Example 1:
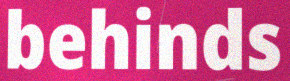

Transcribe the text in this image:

behinds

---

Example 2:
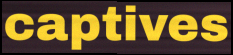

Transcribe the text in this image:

captives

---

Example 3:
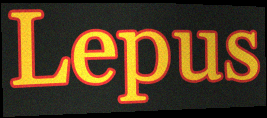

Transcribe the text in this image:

Lepus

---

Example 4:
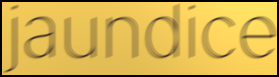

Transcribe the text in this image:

jaundice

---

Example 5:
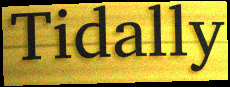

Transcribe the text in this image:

Tidally